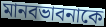
মানবভাবনাকে